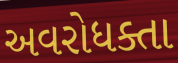
અવરોધક્તા